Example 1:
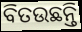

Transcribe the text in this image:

ବିତଉଛନ୍ତି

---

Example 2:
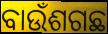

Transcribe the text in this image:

ବାଉଁଶଗଛ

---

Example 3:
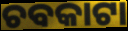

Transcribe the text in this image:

ଚବକାଟା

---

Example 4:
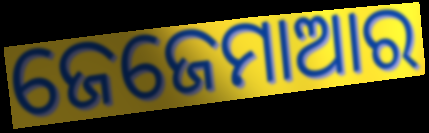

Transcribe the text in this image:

ଜେଜେମାଆର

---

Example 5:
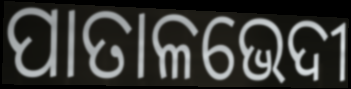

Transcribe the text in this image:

ପାତାଳଭେଦୀ